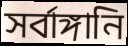
সর্বাঙ্গানি